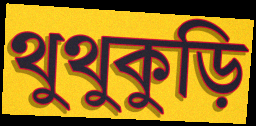
থুথুকুড়ি